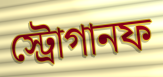
স্ট্রোগানফ